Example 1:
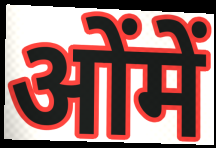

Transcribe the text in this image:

ओंमें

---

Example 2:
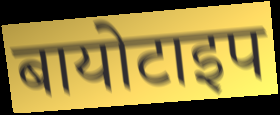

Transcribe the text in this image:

बायोटाइप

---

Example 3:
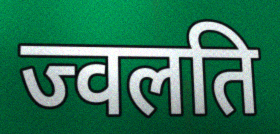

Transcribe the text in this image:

ज्वलति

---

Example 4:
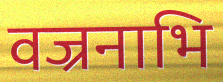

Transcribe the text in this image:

वज्रनाभि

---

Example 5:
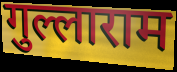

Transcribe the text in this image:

गुल्लाराम